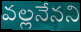
వల్లనేనని